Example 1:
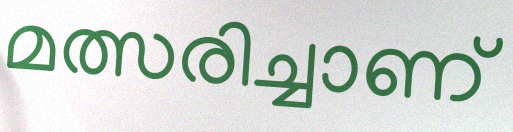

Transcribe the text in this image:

മത്സരിച്ചാണ്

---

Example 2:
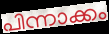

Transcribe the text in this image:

പിന്നാക്കം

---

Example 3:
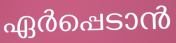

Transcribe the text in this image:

ഏർപ്പെടാൻ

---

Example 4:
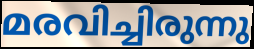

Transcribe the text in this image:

മരവിച്ചിരുന്നു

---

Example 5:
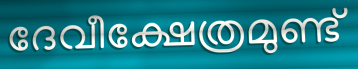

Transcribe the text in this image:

ദേവീക്ഷേത്രമുണ്ട്